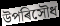
উপৰিসৌধ